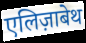
एलिज़ाबेथ